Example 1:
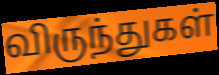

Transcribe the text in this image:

விருந்துகள்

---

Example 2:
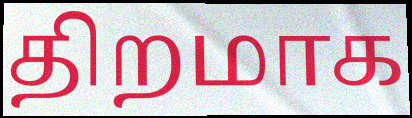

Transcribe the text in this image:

திறமாக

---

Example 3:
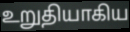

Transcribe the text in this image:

உறுதியாகிய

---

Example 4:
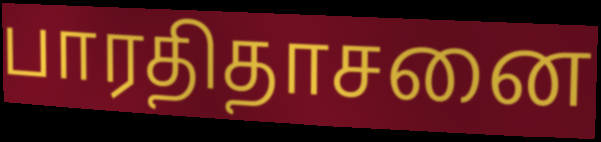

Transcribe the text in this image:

பாரதிதாசனை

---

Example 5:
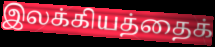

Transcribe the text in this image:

இலக்கியத்தைக்